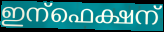
ഇന്ഫെക്ഷന്